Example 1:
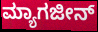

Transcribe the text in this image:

ಮ್ಯಾಗಜೀನ್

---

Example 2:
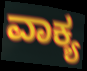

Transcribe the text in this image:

ವಾಕ್ಯ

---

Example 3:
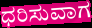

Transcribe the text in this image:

ಧರಿಸುವಾಗ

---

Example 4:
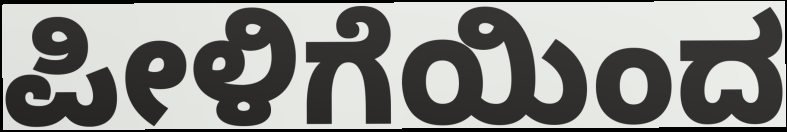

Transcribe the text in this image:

ಪೀಳಿಗೆಯಿಂದ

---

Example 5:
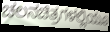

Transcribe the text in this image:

ಚಲನಚಿತ್ರಗಳಲ್ಲಿಯೂ